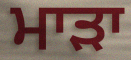
ਮਾਡ਼ਾ